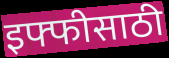
इफ्फीसाठी